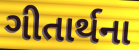
ગીતાર્થના